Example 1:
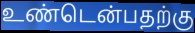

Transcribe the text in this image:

உண்டென்பதற்கு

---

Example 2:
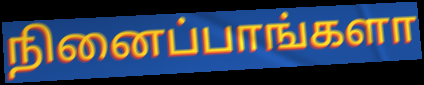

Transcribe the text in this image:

நினைப்பாங்களா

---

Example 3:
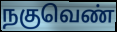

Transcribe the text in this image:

நகுவெண்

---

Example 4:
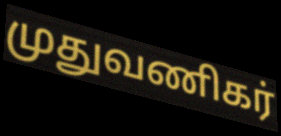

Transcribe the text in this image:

முதுவணிகர்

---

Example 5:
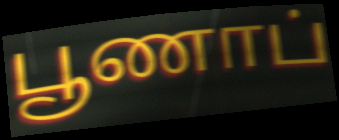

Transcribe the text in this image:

பூணாப்